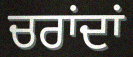
ਚਰਾਂਦਾਂ